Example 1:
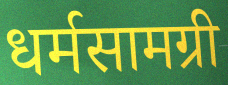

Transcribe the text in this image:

धर्मसामग्री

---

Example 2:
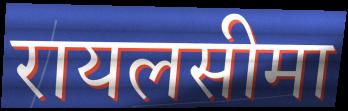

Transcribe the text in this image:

रायलसीमा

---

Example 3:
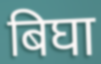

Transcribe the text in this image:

बिघा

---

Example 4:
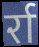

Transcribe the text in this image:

र्रा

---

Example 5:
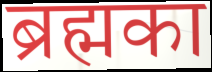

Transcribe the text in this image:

ब्रह्मका